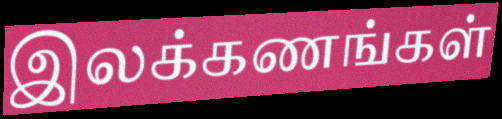
இலக்கணங்கள்